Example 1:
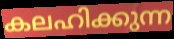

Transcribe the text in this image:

കലഹിക്കുന്ന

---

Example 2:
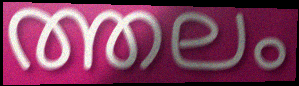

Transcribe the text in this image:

ത്തലം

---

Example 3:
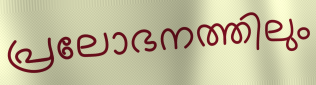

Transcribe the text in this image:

പ്രലോഭനത്തിലും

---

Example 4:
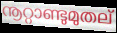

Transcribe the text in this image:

നൂറ്റാണ്ടുമുതല്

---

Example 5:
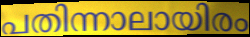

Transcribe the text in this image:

പതിന്നാലായിരം